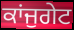
ਕਾਂਜੁਗੇਟ